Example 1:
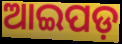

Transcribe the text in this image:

ଆଇପଡ଼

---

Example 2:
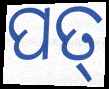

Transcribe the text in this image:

ପତ୍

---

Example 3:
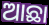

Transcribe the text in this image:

ଆଛା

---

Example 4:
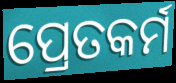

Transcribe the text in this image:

ପ୍ରେତକର୍ମ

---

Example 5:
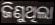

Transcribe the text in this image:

ଜିଣୁଥିଲା